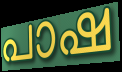
പാഷ